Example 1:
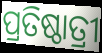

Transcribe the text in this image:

ପ୍ରତିଷ୍ଠାତ୍ରୀ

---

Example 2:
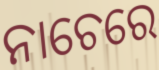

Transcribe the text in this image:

ନାଚେରେ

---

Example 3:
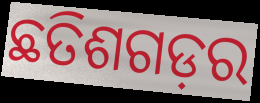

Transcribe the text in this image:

ଛତିଶଗଡ଼ର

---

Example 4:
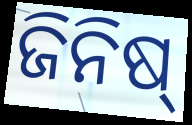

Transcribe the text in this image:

ଜିନିଷ୍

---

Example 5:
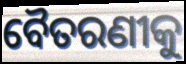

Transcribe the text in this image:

ବୈତରଣୀକୁ